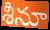
శీనూ